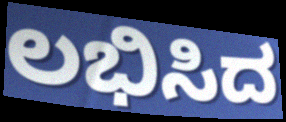
ಲಭಿಸಿದ